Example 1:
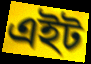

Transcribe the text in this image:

এইট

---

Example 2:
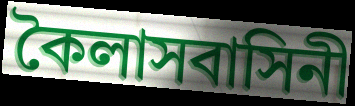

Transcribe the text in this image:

কৈলাসবাসিনী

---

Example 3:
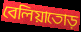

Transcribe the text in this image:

বেলিয়াতোড়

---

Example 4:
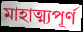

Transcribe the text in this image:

মাহাত্ম্যপূর্ণ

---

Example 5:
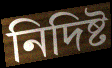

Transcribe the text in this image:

নিদিষ্ট